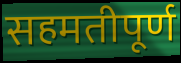
सहमतीपूर्ण